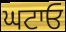
ਘਟਾਓ